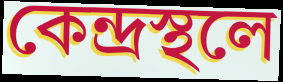
কেন্দ্রস্থলে